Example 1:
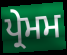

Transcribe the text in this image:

ਪ੍ਰੇਮਮ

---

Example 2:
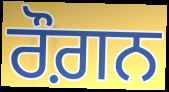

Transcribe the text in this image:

ਰੌਗ਼ਨ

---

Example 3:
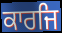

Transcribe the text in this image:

ਕਾਰਜਿ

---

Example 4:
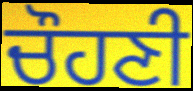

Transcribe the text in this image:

ਚੌਹਣੀ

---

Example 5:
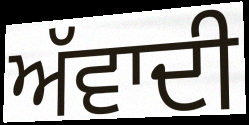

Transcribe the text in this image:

ਅੱਵਾਦੀ